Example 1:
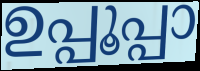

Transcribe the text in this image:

ഉപ്പൂപ്പാ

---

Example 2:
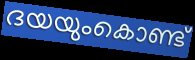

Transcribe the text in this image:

ദയയുംകൊണ്ട്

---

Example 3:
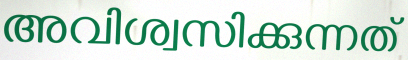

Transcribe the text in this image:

അവിശ്വസിക്കുന്നത്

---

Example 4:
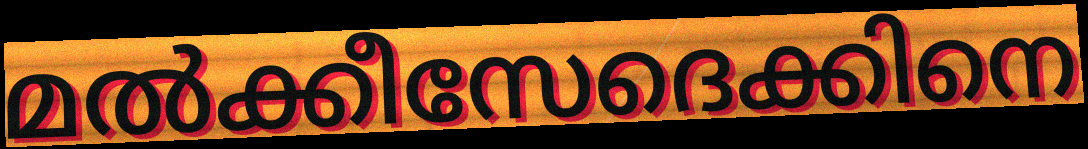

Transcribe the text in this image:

മൽക്കീസേദെക്കിനെ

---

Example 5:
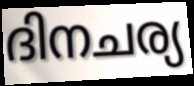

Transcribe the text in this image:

ദിനചര്യ